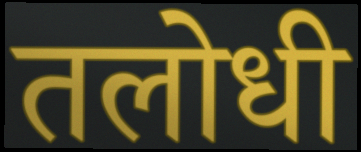
तलोधी